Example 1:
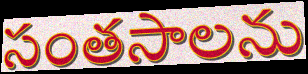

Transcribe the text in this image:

సంతసాలను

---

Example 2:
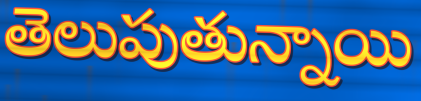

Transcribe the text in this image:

తెలుపుతున్నాయి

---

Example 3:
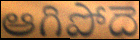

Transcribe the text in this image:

ఆగిపోదె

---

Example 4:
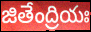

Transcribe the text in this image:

జితేంద్రియః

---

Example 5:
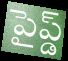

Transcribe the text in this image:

పైప్డ్